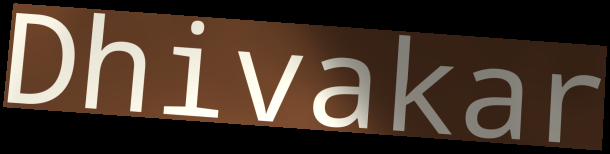
Dhivakar